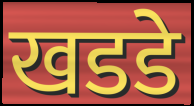
खडडे